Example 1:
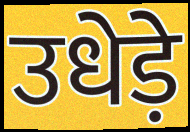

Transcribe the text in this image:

उधेड़े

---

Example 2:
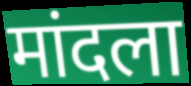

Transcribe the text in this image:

मांदला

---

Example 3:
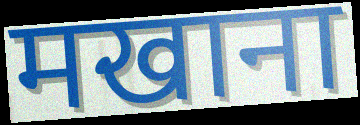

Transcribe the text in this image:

मखाना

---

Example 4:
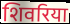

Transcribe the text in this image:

शिवरिया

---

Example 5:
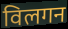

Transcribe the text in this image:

विलगन